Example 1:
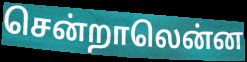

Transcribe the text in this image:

சென்றாலென்ன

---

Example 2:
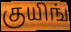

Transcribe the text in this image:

குயிங்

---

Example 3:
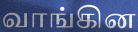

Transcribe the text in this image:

வாங்கின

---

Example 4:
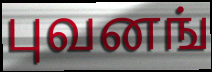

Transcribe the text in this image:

புவனங்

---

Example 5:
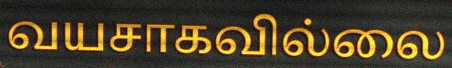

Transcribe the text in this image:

வயசாகவில்லை